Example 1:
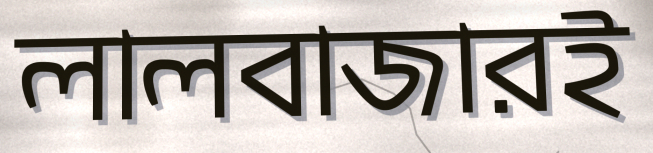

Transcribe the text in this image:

লালবাজারই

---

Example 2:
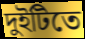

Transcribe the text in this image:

দুইটিতে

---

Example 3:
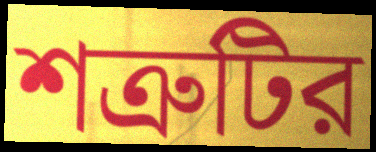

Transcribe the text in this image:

শত্রুটির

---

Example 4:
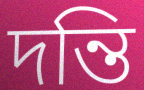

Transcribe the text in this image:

দন্তি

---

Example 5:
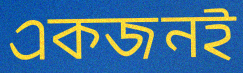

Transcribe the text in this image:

একজনই